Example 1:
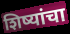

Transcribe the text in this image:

शिष्यांचा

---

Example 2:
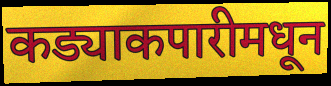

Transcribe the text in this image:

कड्याकपारीमधून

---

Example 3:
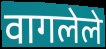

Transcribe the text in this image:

वागलेले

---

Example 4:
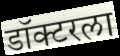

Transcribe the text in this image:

डॉक्टरला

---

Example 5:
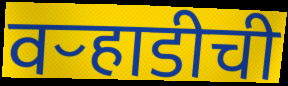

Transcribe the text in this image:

वऱ्हाडीची